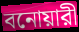
বনোয়ারী